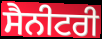
ਸੈਨੀਟਰੀ